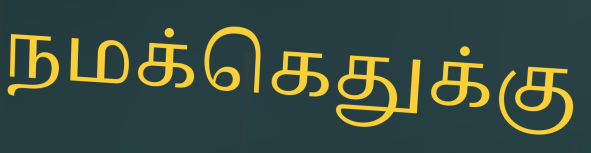
நமக்கெதுக்கு